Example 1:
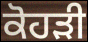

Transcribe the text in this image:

ਕੋਹੜੀ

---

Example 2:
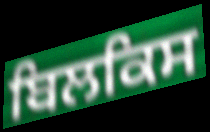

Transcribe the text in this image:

ਬਿਲਕਿਸ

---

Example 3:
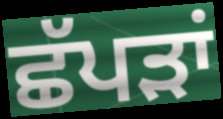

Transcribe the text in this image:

ਛੱਪੜਾਂ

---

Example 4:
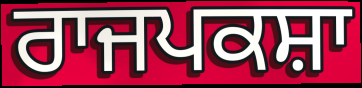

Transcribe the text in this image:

ਰਾਜਪਕਸ਼ਾ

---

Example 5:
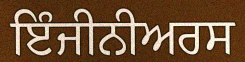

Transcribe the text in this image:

ਇੰਜੀਨੀਅਰਸ